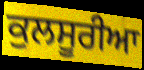
ਕੁਲਸੂਰੀਆ